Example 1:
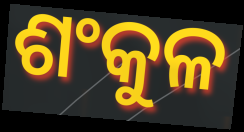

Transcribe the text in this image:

ଶଂକୁଳ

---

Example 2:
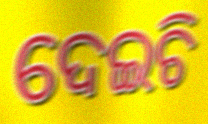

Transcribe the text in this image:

ଦେଇଚି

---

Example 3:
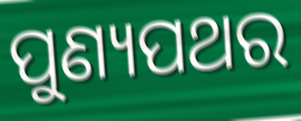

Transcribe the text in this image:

ପୁଣ୍ୟପଥର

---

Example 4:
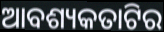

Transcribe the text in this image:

ଆବଶ୍ୟକତାଟିର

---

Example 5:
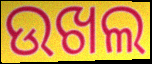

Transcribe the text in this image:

ଉଖଲ